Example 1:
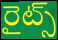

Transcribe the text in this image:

రైట్స్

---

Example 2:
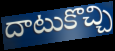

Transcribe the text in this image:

దాటుకొచ్చి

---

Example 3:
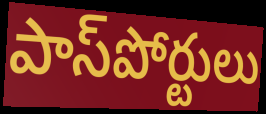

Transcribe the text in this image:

పాస్‌పోర్టులు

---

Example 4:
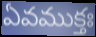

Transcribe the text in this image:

ఏవముక్తః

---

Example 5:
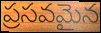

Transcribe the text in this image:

ప్రసవమైన